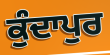
ਕੁੰਦਾਪੁਰ